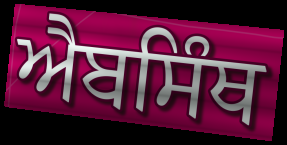
ਐਬਸਿੰਥ